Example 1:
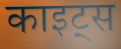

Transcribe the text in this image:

काइट्स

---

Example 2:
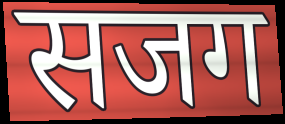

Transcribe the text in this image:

सजग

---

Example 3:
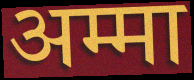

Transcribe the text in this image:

अम्मा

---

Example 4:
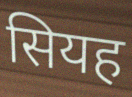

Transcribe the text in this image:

सियह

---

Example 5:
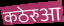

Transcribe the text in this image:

कठेरुआ